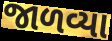
જાળવ્યા